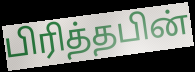
பிரித்தபின்